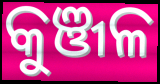
କୁଞ୍ଜଳ